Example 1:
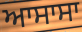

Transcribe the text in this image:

ਆਸਾਸਾ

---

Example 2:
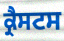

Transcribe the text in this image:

ਕ੍ਰੈਸਟਸ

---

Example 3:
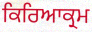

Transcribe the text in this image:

ਕਿਰਿਆਕ੍ਰਮ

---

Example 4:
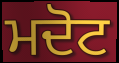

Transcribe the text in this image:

ਮਦੋਟ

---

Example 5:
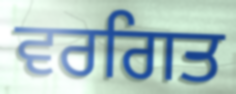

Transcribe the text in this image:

ਵਰਗਿਤ